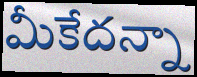
మీకేదన్నా